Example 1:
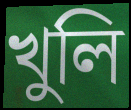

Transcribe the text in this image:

খুলি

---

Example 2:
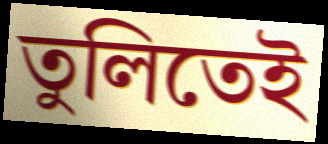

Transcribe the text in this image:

তুলিতেই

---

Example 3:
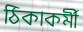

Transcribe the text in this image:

ঠিকাকর্মী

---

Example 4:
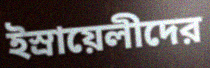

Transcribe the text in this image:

ইস্রায়েলীদের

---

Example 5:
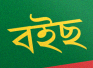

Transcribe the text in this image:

বইছ